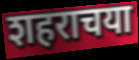
शहराचया